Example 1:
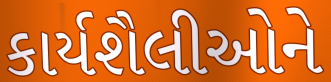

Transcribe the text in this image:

કાર્યશૈલીઓને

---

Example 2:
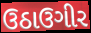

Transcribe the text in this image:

ઉઠાઉગીર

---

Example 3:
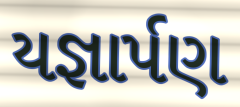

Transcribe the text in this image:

યજ્ઞાર્પણ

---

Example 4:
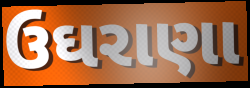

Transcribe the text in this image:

ઉઘરાણા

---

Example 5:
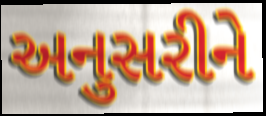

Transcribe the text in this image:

અનુસરીને